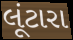
લૂંટારા